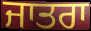
ਜਾਤਰਾ